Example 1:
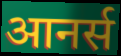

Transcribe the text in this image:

आनर्स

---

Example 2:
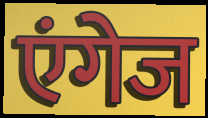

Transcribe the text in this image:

एंगेज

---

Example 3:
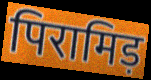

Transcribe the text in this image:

पिरामिड़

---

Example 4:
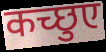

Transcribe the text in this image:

कच्छुए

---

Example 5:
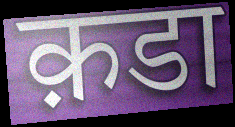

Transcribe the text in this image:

क़डा